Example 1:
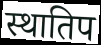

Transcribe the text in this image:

स्थातिप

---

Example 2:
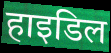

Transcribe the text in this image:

हाइडिल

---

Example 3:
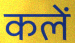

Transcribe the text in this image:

कलें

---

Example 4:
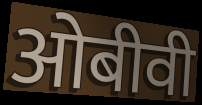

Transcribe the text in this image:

ओबीवी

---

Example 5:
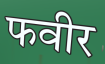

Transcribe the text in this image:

फवीर